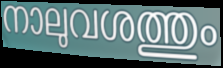
നാലുവശത്തും